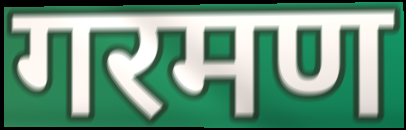
गरमण